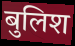
बुलिश